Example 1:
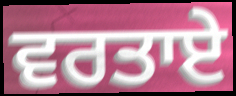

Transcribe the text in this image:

ਵਰਤਾਏ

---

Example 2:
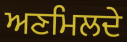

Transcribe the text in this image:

ਅਣਮਿਲਦੇ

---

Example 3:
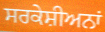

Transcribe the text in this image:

ਸਰਕੇਸ਼ੀਅਨਾਂ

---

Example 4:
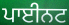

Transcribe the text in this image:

ਪਾਈਨਟ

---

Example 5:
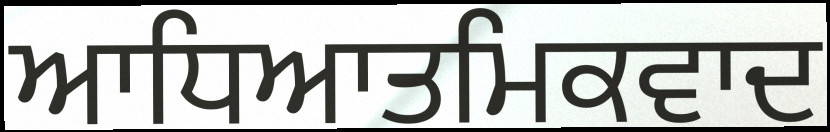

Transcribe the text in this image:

ਆਧਿਆਤਮਿਕਵਾਦ